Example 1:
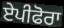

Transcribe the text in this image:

ਏਪੀਫੋਰਾ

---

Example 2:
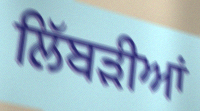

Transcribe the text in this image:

ਲਿੱਬੜੀਆਂ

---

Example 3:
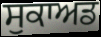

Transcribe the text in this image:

ਸੁਕਾਅਡ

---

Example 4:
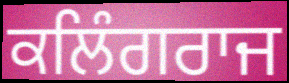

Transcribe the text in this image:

ਕਲਿੰਗਰਾਜ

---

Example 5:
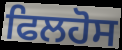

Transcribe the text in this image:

ਫਿਲਹੋਸ